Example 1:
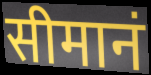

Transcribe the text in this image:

सीमानं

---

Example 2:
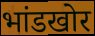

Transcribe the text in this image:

भांडखोर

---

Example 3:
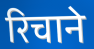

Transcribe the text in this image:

रिचाने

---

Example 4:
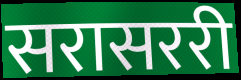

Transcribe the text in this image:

सरासररी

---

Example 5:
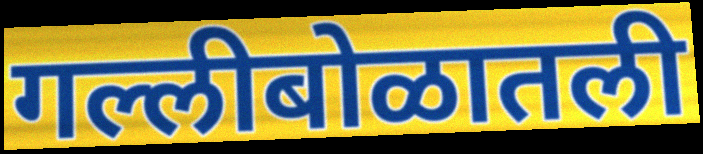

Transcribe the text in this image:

गल्लीबोळातली